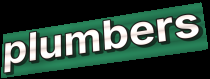
plumbers